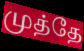
முத்தே